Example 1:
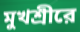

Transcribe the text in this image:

মুখশ্রীরে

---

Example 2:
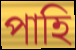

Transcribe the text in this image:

পাহি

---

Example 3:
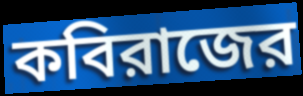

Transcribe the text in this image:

কবিরাজের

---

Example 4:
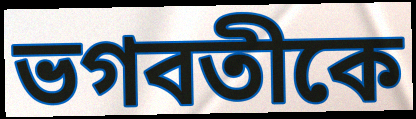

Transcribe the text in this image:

ভগবতীকে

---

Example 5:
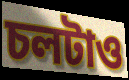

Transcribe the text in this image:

চলটাও